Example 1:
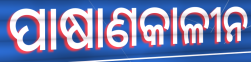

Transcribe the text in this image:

ପାଷାଣକାଳୀନ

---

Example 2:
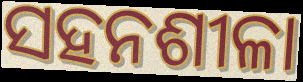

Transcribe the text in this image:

ସହନଶୀଳା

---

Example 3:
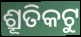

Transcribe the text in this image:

ଶ୍ରୂତିକଟୁ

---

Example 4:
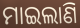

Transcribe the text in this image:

ମାଇଲାଣି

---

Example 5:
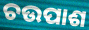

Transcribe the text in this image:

ଚଉପାଶ